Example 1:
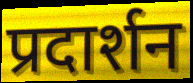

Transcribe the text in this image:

प्रदार्शन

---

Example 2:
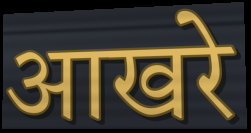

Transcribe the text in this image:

आखरे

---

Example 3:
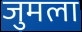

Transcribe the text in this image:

जुमला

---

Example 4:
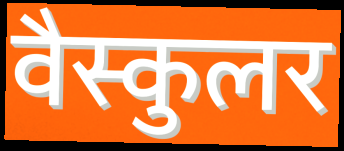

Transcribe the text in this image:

वैस्कुलर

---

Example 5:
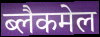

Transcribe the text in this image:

ब्लैकमेल